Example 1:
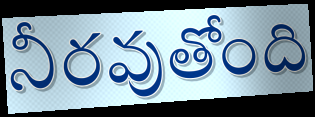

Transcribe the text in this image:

నీరవుతోంది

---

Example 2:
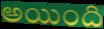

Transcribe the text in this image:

అయింది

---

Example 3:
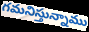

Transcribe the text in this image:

గమనిస్తున్నాము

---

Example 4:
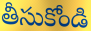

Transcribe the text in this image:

తీసుకోండి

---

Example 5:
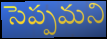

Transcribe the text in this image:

సెప్పమని